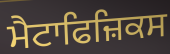
ਮੈਟਾਫਿਜ਼ਿਕਸ